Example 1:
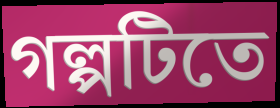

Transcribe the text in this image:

গল্পটিতে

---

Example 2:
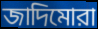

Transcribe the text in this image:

জাদিমোরা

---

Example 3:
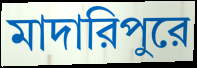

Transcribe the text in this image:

মাদারিপুরে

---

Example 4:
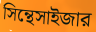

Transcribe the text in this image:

সিন্থেসাইজার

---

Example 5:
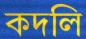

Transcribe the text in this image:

কদলি